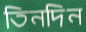
তিনদিন